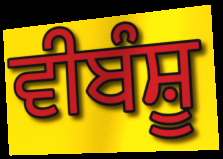
ਵੀਬੰਸ਼ੂ